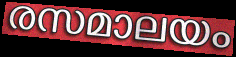
രസമാലയം